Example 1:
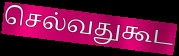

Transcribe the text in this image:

செல்வதுகூட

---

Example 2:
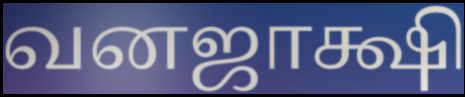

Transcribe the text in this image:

வனஜாக்ஷி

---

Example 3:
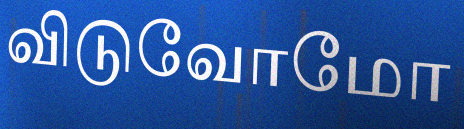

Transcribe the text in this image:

விடுவோமோ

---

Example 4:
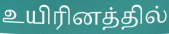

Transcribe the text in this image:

உயிரினத்தில்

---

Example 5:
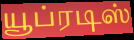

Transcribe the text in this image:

யூப்ரடிஸ்